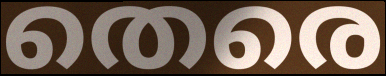
തെരെ